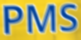
PMS